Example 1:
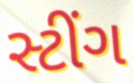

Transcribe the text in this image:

સ્ટીંગ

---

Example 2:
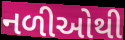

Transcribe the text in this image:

નળીઓથી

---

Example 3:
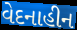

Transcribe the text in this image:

વેદનાહીન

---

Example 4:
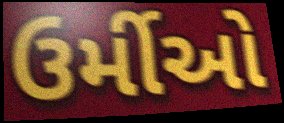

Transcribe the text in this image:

ઉર્મીઓ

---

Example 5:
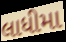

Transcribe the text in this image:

લાધીમા